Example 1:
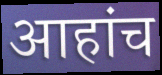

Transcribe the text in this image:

आहांच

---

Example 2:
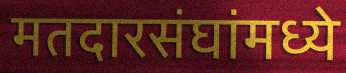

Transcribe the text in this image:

मतदारसंघांमध्ये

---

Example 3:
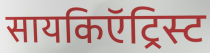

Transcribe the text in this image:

सायकिऍट्रिस्ट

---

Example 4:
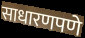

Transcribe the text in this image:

साधारणपणे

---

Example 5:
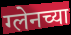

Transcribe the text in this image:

ग्लेनच्या